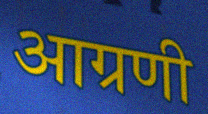
आग्रणी